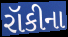
રૉકીના